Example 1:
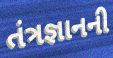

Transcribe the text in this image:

તંત્રજ્ઞાનની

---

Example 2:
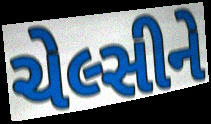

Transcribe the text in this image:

ચેલ્સીને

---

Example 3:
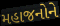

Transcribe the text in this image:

મહાજનોને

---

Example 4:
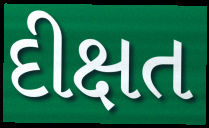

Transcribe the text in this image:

દીક્ષત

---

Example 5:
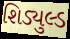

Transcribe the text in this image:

શિડ્યુલ્ડ